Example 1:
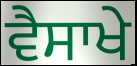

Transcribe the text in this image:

ਵੈਸਾਖੇ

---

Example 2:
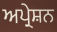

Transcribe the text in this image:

ਅਪ੍ਰੇਸ਼ਨ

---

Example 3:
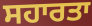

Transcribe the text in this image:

ਸਹਾਰਤਾ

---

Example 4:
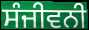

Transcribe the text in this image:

ਸੰਜੀਵਨੀ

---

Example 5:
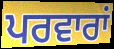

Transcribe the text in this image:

ਪਰਵਾਰਾਂ